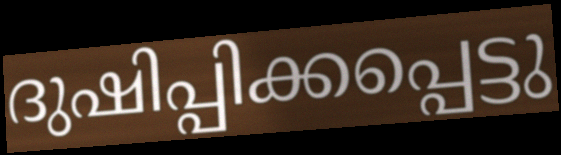
ദുഷിപ്പിക്കപ്പെട്ടു